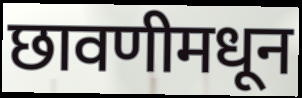
छावणीमधून